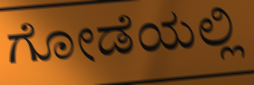
ಗೋಡೆಯಲ್ಲಿ